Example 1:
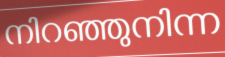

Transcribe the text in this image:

നിറഞ്ഞുനിന്ന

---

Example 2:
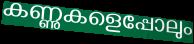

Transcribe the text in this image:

കണ്ണുകളെപ്പോലും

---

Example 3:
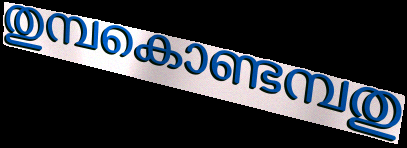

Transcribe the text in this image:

തുമ്പകൊണ്ടമ്പതു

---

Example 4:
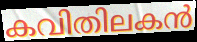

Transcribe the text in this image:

കവിതിലകൻ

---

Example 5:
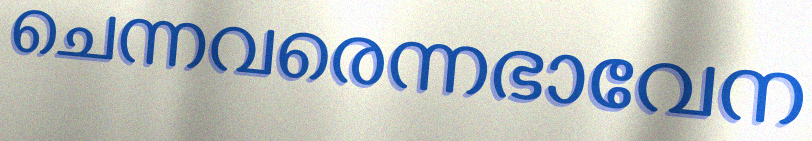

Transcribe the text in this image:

ചെന്നവരെന്നഭാവേന